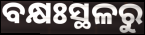
ବକ୍ଷଃସ୍ଥଳରୁ